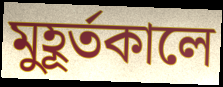
মুহূর্তকালে